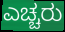
ಎಚ್ಚರು